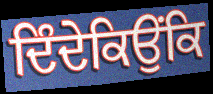
ਦਿੰਦੇਕਿਉਂਕਿ